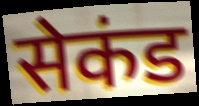
सेकंड